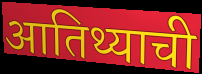
आतिथ्याची